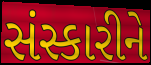
સંસ્કારીને